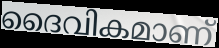
ദൈവികമാണ്